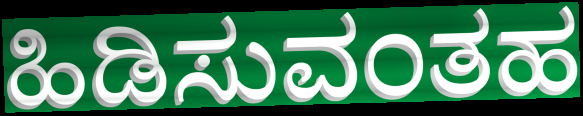
ಹಿಡಿಸುವಂತಹ